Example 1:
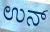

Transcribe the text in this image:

ಉನ್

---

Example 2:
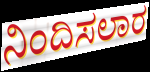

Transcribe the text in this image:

ನಿಂದಿಸಲಾರ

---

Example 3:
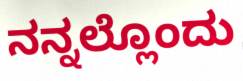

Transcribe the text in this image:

ನನ್ನಲ್ಲೊಂದು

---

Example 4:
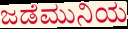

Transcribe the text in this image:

ಜಡೆಮುನಿಯ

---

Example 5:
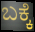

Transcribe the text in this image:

ಬಕ್ಕೆ